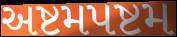
અષ્ટમપષ્ટમ